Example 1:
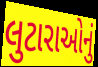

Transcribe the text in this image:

લુટારાઓનું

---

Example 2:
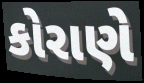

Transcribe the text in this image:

કોરાણે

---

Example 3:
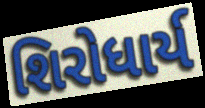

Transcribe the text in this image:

શિરોધાર્ય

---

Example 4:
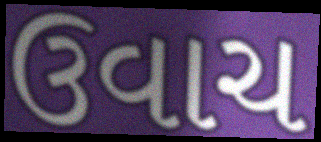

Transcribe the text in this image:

ઉવાચ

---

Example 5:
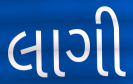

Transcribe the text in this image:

લાગી